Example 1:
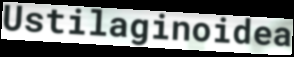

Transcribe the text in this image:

Ustilaginoidea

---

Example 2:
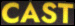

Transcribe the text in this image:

CAST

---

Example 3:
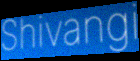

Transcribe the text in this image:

Shivangi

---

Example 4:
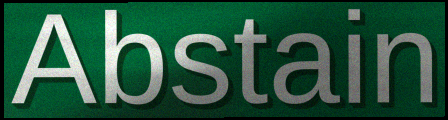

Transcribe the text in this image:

Abstain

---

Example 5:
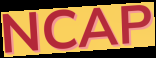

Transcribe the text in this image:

NCAP